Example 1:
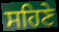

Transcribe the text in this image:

ਸਹਿਣੇ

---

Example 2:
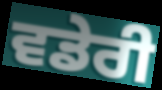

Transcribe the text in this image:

ਵਡੇਰੀ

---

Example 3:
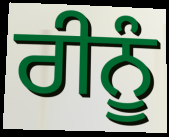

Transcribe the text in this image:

ਰੀਨੂੰ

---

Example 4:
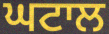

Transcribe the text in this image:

ਘਟਾਲ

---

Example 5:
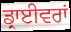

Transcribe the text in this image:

ਡ੍ਰਾਈਵਰਾਂ